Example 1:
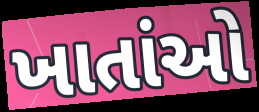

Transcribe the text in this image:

ખાતાંઓ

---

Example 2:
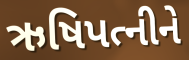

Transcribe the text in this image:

ઋષિપત્નીને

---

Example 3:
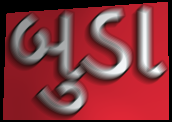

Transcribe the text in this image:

બુડા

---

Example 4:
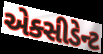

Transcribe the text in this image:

એક્સીડેન્ટ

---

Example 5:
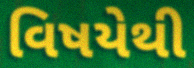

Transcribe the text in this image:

વિષયેથી